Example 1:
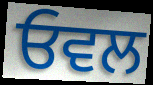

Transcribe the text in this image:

ਓਵਲ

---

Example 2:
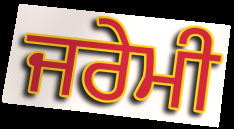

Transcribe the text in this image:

ਜਰੇਮੀ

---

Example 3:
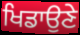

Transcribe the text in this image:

ਖਿਡਾਉਣੇ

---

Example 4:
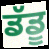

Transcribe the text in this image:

ਡੱਡੂ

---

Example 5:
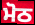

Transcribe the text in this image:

ਮੋਠ